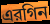
এরগিন